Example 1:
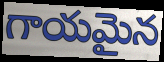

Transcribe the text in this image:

గాయమైన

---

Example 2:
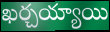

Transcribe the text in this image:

ఖర్చయ్యాయి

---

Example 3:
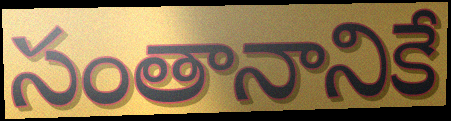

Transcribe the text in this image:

సంతానానికే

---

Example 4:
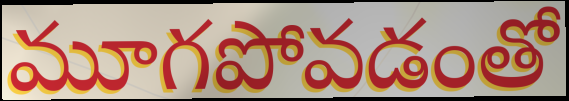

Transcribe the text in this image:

మూగపోవడంతో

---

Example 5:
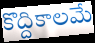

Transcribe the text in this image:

కొద్దికాలమే